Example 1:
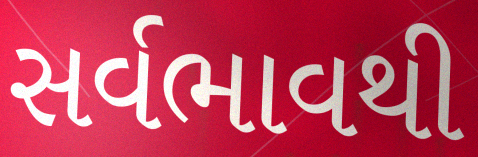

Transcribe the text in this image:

સર્વભાવથી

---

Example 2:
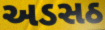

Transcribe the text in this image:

અડસઠ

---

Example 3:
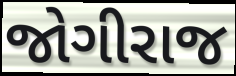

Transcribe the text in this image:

જોગીરાજ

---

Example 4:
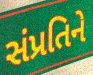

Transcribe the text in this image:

સંપ્રતિને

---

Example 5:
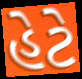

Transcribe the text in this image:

હેટે